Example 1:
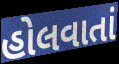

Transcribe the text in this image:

હોલવાતાં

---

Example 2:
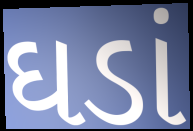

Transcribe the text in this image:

ઘડાં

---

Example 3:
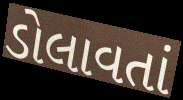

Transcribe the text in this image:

ડોલાવતાં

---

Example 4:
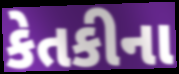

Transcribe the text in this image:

કેતકીના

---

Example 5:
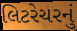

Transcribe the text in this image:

લિટરેચરનું